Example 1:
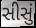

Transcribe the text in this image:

સીસું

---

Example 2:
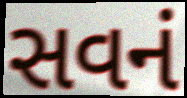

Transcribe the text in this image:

સવનં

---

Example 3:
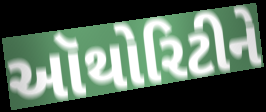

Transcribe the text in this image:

ઑથોરિટીને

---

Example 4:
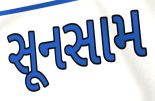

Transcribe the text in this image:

સૂનસામ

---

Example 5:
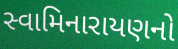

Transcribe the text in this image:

સ્વામિનારાયણનો